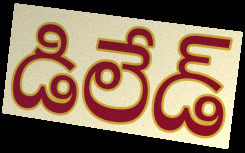
డిలేడ్